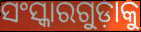
ସଂସ୍କାରଗୁଡ଼ାକୁ